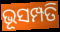
ଭୂସମ୍ପତି